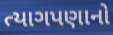
ત્યાગપણાનો